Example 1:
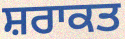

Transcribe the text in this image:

ਸ਼ਰਾਕਤ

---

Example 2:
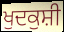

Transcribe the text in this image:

ਖੁਦਕੁਸ਼ੀ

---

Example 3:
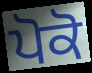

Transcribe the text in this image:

ਪੋਕੋ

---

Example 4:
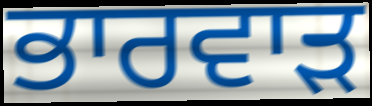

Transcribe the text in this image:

ਭਾਰਵਾੜ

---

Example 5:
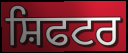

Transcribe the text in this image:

ਸ਼ਿਫਟਰ